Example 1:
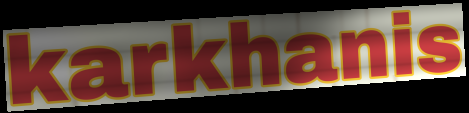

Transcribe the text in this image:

karkhanis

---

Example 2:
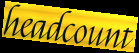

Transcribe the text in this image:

headcount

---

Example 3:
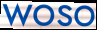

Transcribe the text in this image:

woso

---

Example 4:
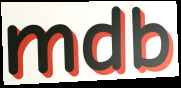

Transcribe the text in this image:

mdb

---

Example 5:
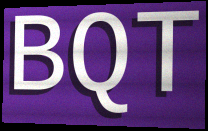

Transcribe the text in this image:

BQT